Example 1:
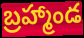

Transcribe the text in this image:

బ్రహ్మాండ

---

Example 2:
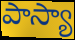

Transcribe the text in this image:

పాస్యా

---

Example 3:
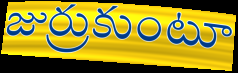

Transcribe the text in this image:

జుర్రుకుంటూ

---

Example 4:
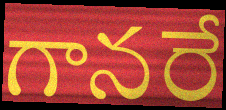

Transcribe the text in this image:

గానరే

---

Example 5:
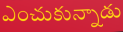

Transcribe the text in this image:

ఎంచుకున్నాడు